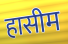
हासीम